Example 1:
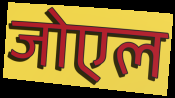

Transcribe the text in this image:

जोएल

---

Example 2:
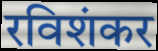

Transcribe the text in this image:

रविशंकर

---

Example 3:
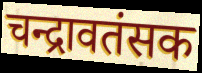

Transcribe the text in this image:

चन्द्रावतंसक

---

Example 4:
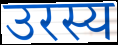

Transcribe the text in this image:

उरस्य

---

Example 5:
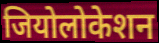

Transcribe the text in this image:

जियोलोकेशन